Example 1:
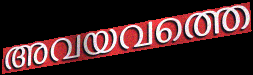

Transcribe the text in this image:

അവയവത്തെ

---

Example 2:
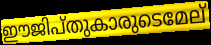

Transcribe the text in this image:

ഈജിപ്തുകാരുടെമേല്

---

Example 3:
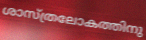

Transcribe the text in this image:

ശാസ്ത്രലോകത്തിനു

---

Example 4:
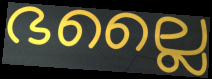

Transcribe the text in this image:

ഭല്ലൈ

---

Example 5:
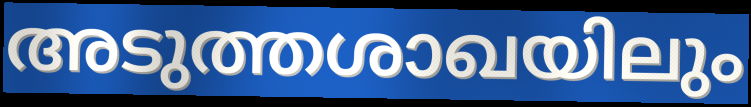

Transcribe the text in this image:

അടുത്തശാഖയിലും